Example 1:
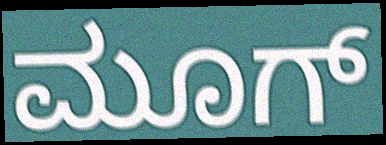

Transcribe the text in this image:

ಮೂಗ್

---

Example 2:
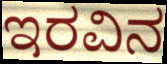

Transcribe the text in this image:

ಇರವಿನ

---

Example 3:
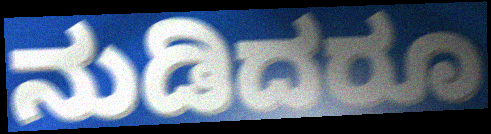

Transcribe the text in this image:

ನುಡಿದರೂ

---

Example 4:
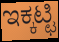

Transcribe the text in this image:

ಇಕ್ಕಟ್ಟಿ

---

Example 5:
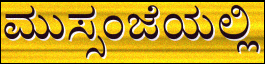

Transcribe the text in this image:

ಮುಸ್ಸಂಜೆಯಲ್ಲಿ